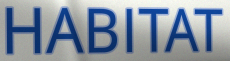
HABITAT